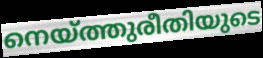
നെയ്ത്തുരീതിയുടെ